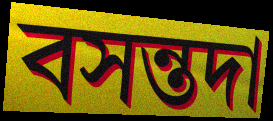
বসন্তদা